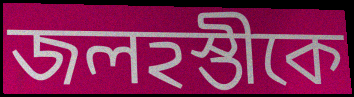
জলহস্তীকে